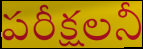
పరీక్షలనీ